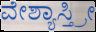
ವೇಶ್ಯಾಸ್ತ್ರೀ